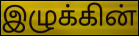
இழுக்கின்